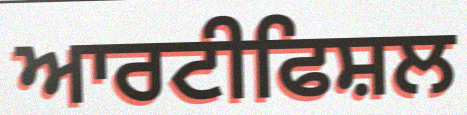
ਆਰਟੀਫਿਸ਼ਲ